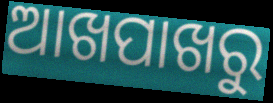
ଆଖପାଖରୁ